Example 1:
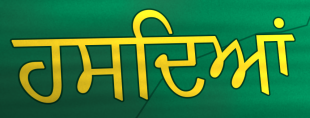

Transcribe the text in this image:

ਹਸਦਿਆਂ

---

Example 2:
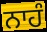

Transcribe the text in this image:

ਨਾਹੰ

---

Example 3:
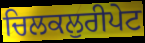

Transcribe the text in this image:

ਚਿਲਕਲੁਰੀਪੇਟ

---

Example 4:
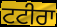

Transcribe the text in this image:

ਟਟੀਰਾ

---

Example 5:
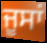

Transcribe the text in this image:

ਜੂਸਾਂ